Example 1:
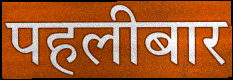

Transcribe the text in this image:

पहलीबार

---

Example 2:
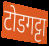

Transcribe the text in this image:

टोडगट्टा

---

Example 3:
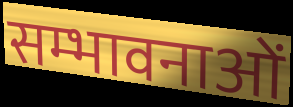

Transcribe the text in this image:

सम्भावनाओं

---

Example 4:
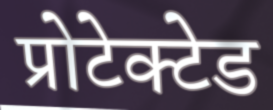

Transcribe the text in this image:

प्रोटेक्टेड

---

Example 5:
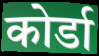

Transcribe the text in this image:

कोर्डा